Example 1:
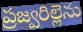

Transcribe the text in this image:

ప్రజ్వరిల్లెను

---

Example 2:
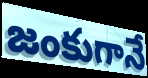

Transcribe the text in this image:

జంకుగానే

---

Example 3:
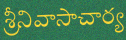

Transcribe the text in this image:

శ్రీనివాసాచార్య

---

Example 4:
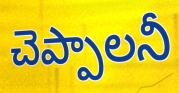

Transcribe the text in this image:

చెప్పాలనీ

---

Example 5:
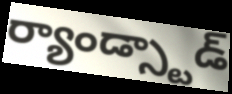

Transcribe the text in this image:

ర్యాండ్స్టాడ్